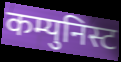
कम्युनिस्ट